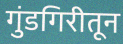
गुंडगिरीतून